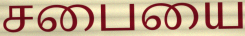
சபையை